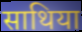
साथिया